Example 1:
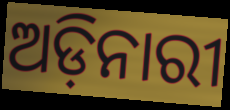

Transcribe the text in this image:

ଅଡ଼ିନାରୀ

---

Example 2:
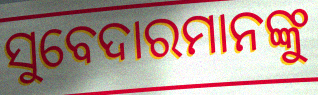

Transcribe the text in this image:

ସୁବେଦାରମାନଙ୍କୁ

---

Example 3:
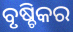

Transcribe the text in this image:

ବୃଷ୍ଚିକର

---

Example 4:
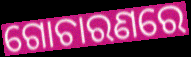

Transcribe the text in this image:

ଗୋଚାରଣରେ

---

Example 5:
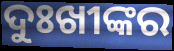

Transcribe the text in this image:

ଦୁଃଖୀଙ୍କର